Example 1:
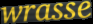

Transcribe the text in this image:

wrasse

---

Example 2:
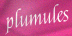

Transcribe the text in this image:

plumules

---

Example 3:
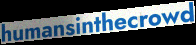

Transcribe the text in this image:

humansinthecrowd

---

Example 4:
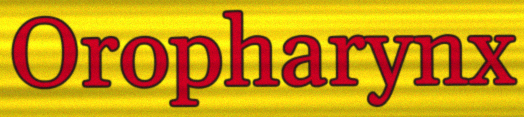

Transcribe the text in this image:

Oropharynx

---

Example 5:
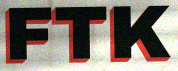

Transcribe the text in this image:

FTK